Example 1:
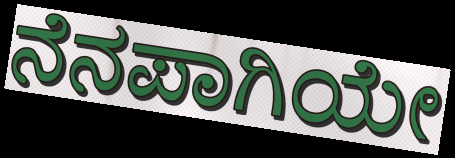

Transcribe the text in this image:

ನೆನಪಾಗಿಯೇ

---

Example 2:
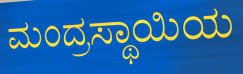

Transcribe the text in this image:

ಮಂದ್ರಸ್ಥಾಯಿಯ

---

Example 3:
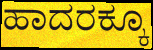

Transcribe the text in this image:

ಹಾದರಕ್ಕೂ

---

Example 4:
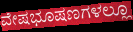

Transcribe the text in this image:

ವೇಷಭೂಷಣಗಳಲ್ಲೂ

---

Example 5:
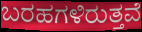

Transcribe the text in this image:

ಬರಹಗಳಿರುತ್ತವೆ